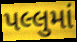
પલ્લુમાં